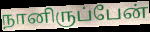
நானிருப்பேன்